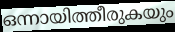
ഒന്നായിത്തീരുകയും